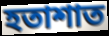
হতাশাত